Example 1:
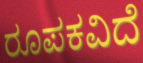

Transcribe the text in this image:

ರೂಪಕವಿದೆ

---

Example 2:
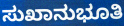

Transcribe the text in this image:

ಸುಖಾನುಭೂತಿ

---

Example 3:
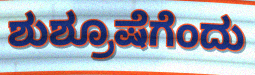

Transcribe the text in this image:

ಶುಶ್ರೂಷೆಗೆಂದು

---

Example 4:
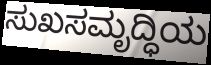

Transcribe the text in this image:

ಸುಖಸಮೃದ್ಧಿಯ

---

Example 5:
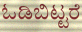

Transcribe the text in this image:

ಓಡಿಬಿಟ್ಟರೆ